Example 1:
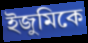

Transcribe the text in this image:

ইজুমিকে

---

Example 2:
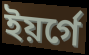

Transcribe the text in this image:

ইয়র্গে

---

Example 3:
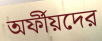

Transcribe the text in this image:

অর্ফীয়দের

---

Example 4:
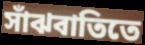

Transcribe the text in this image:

সাঁঝবাতিতে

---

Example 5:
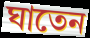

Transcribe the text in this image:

ঘাতেন